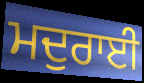
ਮਦੁਰਾਈ